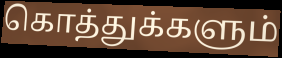
கொத்துக்களும்